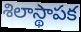
శిలాస్థాపక